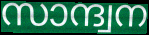
സാന്ദ്വന